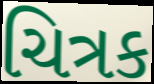
ચિત્રક